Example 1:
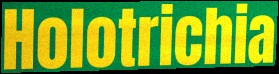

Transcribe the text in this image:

Holotrichia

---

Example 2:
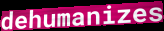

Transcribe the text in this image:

dehumanizes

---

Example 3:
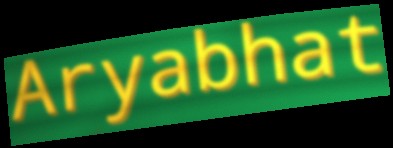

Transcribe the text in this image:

Aryabhat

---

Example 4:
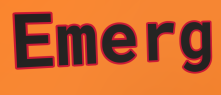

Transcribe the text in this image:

Emerg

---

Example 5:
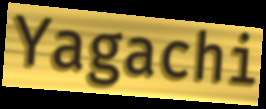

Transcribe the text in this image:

Yagachi